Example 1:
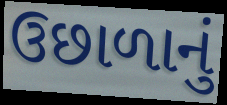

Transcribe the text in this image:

ઉછાળાનું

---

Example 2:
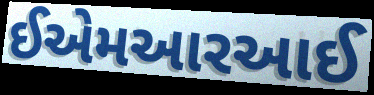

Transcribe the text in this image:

ઈએમઆરઆઈ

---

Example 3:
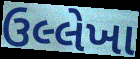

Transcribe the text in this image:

ઉલ્લેખા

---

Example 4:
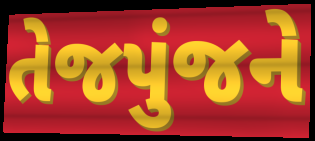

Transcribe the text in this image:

તેજપુંજને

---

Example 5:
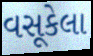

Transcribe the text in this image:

વસૂકેલા